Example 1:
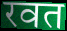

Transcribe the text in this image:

रवत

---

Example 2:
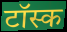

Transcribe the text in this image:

टॉस्‍क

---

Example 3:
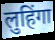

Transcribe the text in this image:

लुहिंगा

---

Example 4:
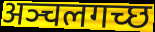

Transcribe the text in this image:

अञ्चलगच्छ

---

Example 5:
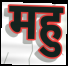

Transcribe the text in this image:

महु